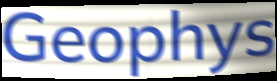
Geophys